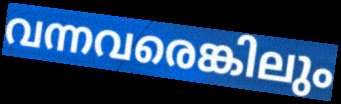
വന്നവരെങ്കിലും